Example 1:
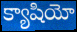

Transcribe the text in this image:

క్యాషియో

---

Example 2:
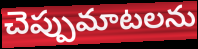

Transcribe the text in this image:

చెప్పుమాటలను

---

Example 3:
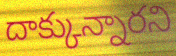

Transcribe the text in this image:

దాక్కున్నారని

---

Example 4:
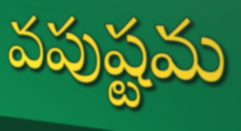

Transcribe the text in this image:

వపుష్టమ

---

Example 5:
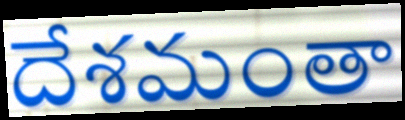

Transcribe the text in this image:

దేశమంతా